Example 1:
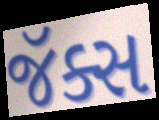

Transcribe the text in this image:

જૅક્સ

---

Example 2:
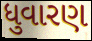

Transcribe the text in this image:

ધુવારણ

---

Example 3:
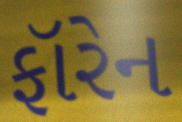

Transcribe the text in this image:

ફૉરેન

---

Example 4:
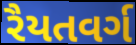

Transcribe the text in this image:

રૈયતવર્ગ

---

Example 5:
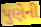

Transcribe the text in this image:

પુણેની